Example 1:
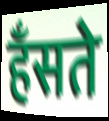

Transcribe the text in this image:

हँसते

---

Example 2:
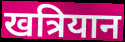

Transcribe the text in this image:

खत्रियान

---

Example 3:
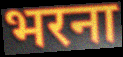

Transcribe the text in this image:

भरना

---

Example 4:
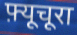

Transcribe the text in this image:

फ़्यूचूरा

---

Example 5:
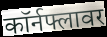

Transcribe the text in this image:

कॉर्नफ्लावर